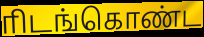
ரிடங்கொண்ட